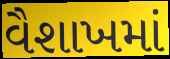
વૈશાખમાં